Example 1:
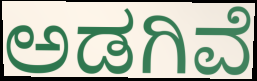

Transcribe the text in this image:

ಅಡಗಿವೆ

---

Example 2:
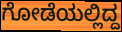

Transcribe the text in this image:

ಗೋಡೆಯಲ್ಲಿದ್ದ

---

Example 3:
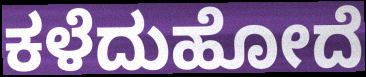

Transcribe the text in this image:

ಕಳೆದುಹೋದೆ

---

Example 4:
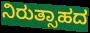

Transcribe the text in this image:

ನಿರುತ್ಸಾಹದ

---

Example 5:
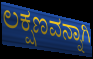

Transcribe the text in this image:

ಲಕ್ಷಣವನ್ನಾಗಿ